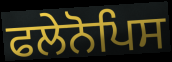
ਫਲੇਨੋਪਿਸ